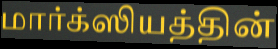
மார்க்ஸியத்தின்